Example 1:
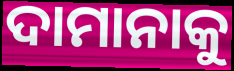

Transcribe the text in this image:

ଦାମାନାକୁ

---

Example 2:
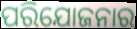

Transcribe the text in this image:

ପରିଯୋଜନାର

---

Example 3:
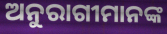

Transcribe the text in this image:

ଅନୁରାଗୀମାନଙ୍କ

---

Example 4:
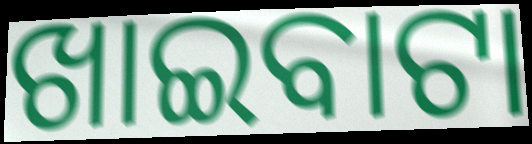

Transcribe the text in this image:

ଖାଇବାଟା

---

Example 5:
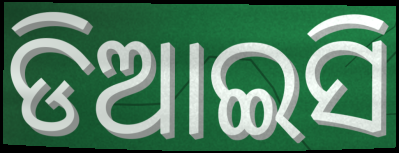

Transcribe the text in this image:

ଡିଆଇସି